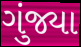
ગુંજ્યા